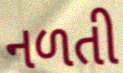
નળતી